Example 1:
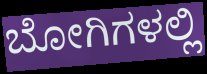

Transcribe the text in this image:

ಬೋಗಿಗಳಲ್ಲಿ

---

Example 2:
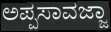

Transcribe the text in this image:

ಅಪ್ಪಸಾವಜ್ಜಾ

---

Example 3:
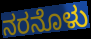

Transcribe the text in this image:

ನರನೊಳು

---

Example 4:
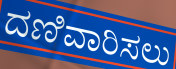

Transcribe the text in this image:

ದಣಿವಾರಿಸಲು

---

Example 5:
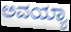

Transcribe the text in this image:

ಅವಯ್ಯಾ